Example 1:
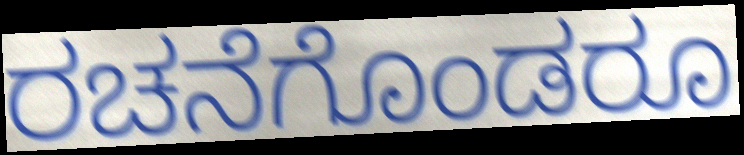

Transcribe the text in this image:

ರಚನೆಗೊಂಡರೂ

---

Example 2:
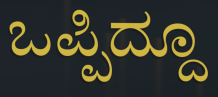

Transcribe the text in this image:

ಒಪ್ಪಿದ್ದೂ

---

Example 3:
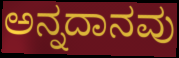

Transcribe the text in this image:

ಅನ್ನದಾನವು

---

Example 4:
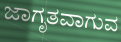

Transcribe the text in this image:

ಜಾಗೃತವಾಗುವ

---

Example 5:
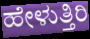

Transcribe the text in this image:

ಹೇಳುತ್ತಿರಿ